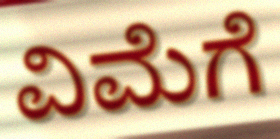
ವಿಮೆಗೆ